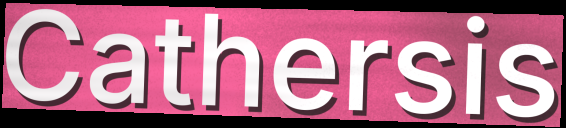
Cathersis